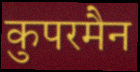
कुपरमैन